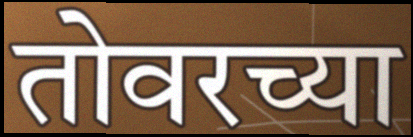
तोवरच्या